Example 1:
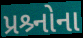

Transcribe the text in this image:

પ્રશ્ર્નોના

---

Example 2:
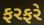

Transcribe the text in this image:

ફરફરે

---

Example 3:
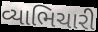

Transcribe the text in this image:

વ્યાભિચારી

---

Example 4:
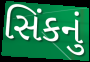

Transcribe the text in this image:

સિંકનું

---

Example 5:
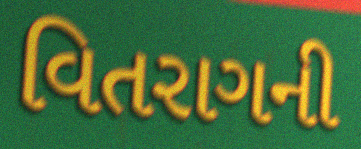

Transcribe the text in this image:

વિતરાગની